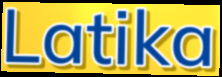
Latika